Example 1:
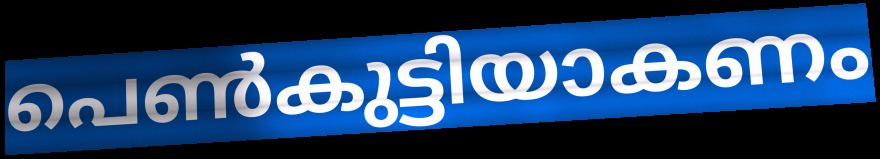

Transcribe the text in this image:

പെൺകുട്ടിയാകണം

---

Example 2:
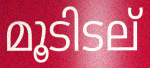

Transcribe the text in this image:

മൂടിടല്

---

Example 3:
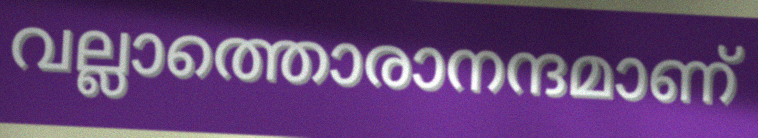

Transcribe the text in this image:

വല്ലാത്തൊരാനന്ദമാണ്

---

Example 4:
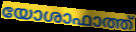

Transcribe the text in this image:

യോശാഫാത്ത്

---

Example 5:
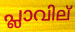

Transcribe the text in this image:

പ്ലാവില്